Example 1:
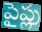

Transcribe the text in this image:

పైప్లు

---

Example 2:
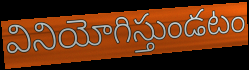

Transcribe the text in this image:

వినియోగిస్తుండటం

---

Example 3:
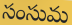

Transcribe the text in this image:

సంసుమ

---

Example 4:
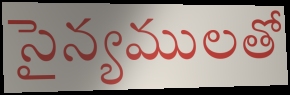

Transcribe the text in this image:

సైన్యములతో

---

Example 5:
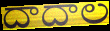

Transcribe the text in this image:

దాదాల